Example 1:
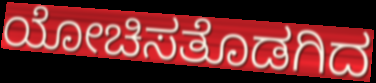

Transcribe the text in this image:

ಯೋಚಿಸತೊಡಗಿದ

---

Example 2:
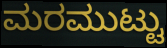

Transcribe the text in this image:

ಮರಮುಟ್ಟು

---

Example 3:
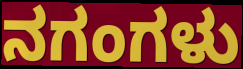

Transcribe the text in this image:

ನಗಂಗಳು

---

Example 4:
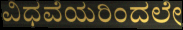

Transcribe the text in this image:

ವಿಧವೆಯರಿಂದಲೇ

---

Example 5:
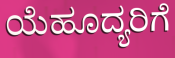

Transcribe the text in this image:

ಯೆಹೂದ್ಯರಿಗೆ